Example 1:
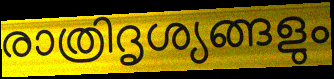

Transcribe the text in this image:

രാത്രിദൃശ്യങ്ങളും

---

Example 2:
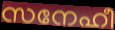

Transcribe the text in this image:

സനേഹീ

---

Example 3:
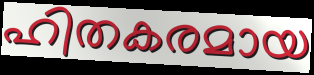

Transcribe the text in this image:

ഹിതകരമായ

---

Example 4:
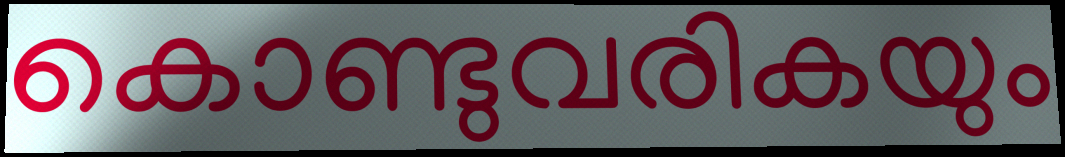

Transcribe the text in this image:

കൊണ്ടുവരികയും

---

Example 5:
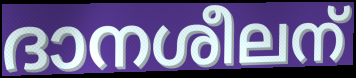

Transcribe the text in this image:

ദാനശീലന്